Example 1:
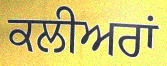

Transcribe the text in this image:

ਕਲੀਅਰਾਂ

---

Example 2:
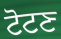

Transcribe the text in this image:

ਟੋਟਣ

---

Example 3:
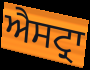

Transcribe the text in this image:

ਐਸਟ੍ਰਾ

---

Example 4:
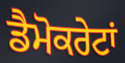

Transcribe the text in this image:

ਡੈਮੋਕਰੇਟਾਂ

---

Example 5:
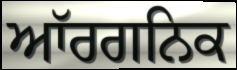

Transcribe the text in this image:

ਆੱਰਗਨਿਕ